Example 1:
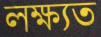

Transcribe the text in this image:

লক্ষ্যত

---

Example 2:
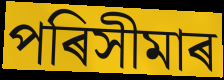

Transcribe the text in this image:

পৰিসীমাৰ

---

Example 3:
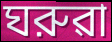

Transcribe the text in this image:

ঘৰুৱা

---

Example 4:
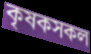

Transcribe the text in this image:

কৃষকসকল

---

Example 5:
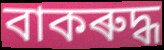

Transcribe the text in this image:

বাকৰুদ্ধ